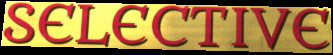
SELECTIVE